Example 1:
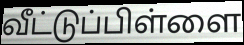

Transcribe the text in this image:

வீட்டுப்பிள்ளை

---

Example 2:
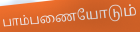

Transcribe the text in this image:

பாம்பணையோடும்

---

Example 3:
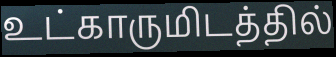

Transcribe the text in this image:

உட்காருமிடத்தில்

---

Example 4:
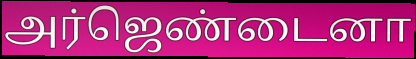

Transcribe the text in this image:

அர்ஜெண்டைனா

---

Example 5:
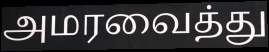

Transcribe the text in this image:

அமரவைத்து